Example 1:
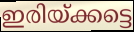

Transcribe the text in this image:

ഇരിയ്ക്കട്ടെ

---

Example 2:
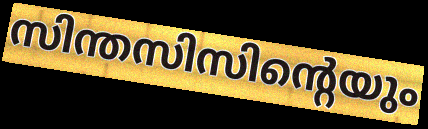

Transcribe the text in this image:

സിന്തസിസിന്റെയും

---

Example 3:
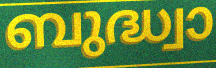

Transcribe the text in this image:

ബുദ്ധ്വാ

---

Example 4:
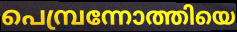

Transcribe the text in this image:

പെമ്പ്രന്നോത്തിയെ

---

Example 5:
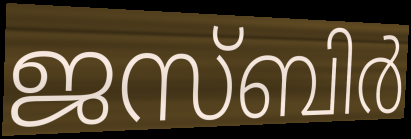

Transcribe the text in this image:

ജസ്ബിർ